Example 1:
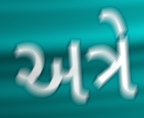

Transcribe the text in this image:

અત્રે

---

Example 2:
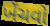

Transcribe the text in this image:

ખેંચવો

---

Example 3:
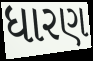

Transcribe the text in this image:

ધારણ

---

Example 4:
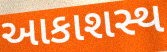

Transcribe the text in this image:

આકાશસ્થ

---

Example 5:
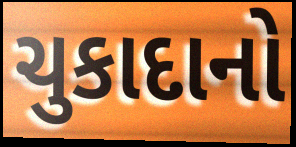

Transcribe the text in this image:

ચુકાદાનો